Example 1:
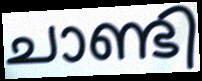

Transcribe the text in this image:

ചാണ്ടി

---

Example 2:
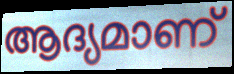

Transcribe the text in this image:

ആദ്യമാണ്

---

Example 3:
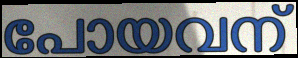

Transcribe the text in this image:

പോയവന്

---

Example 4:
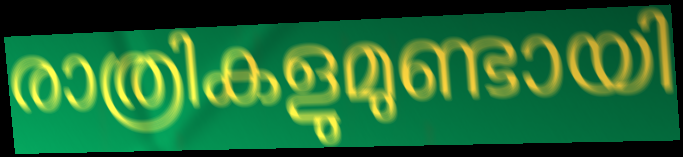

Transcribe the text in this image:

രാത്രികളുമുണ്ടായി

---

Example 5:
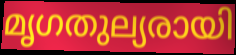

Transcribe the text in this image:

മൃഗതുല്യരായി